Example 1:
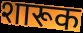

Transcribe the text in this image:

शारूक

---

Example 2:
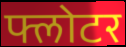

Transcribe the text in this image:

फ्लोटर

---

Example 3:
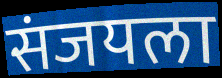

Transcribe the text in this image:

संजयला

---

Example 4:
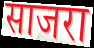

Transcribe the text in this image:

साजरा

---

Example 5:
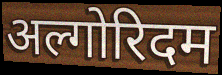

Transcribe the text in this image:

अल्गोरिदम